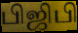
பிஜிபி